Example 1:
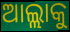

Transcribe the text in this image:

ଆଲ୍ଲାକୁ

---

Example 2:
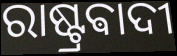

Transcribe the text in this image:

ରାଷ୍ଟ୍ରଵାଦୀ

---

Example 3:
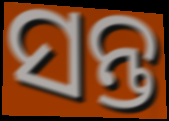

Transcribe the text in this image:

ସନ୍ତ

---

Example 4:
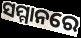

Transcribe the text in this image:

ସମ୍ମାନରେ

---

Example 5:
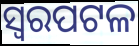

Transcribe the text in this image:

ସ୍ୱରପଟଳ